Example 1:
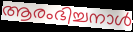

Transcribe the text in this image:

ആരംഭിച്ചനാൾ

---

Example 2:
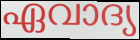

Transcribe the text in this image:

ഏവാദ്യ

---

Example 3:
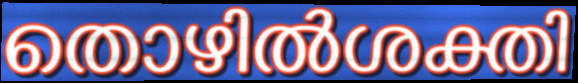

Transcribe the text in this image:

തൊഴിൽശക്തി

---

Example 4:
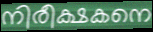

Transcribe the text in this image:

നിരീക്ഷകനെ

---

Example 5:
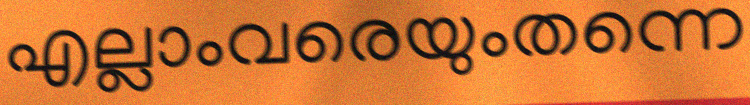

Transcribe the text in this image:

എല്ലാംവരെയുംതന്നെ